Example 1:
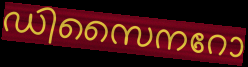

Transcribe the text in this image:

ഡിസൈനറോ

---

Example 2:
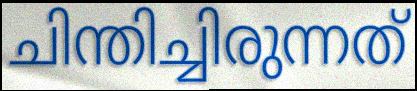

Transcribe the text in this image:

ചിന്തിച്ചിരുന്നത്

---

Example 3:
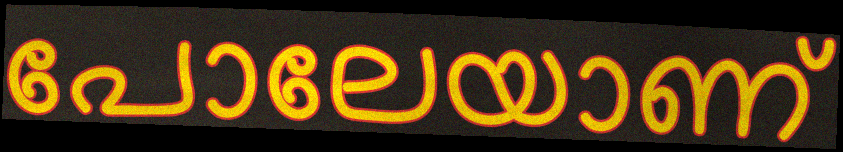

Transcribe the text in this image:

പോലേയാണ്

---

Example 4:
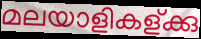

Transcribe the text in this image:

മലയാളികള്ക്കു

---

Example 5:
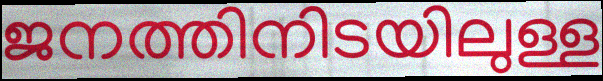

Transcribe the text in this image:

ജനത്തിനിടയിലുള്ള